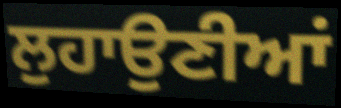
ਲੁਹਾਉਣੀਆਂ